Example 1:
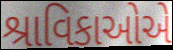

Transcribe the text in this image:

શ્રાવિકાઓએ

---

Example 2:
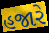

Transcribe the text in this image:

હજારે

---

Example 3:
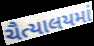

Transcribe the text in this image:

ચૈત્યાલયમાં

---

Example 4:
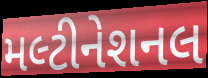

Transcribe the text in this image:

મલ્ટીનેશનલ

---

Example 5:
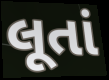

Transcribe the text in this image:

લૂતાં